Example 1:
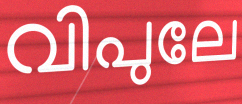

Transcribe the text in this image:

വിപുലേ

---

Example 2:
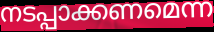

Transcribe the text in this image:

നടപ്പാക്കണമെന്ന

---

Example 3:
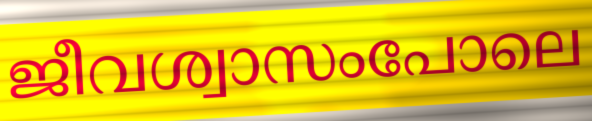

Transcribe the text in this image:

ജീവശ്വാസംപോലെ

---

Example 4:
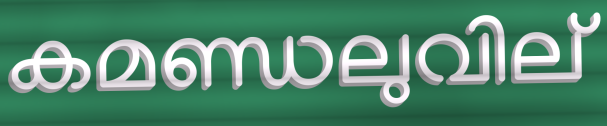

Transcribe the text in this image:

കമണ്ഡലുവില്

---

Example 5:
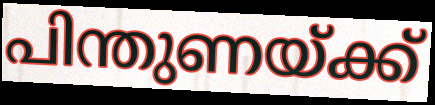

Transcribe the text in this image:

പിന്തുണയ്ക്ക്